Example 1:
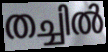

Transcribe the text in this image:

തച്ചിൽ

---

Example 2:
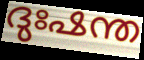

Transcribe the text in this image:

ദുഃഷന്ത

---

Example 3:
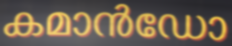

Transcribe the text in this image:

കമാൻഡോ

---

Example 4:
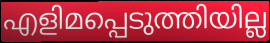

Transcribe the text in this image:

എളിമപ്പെടുത്തിയില്ല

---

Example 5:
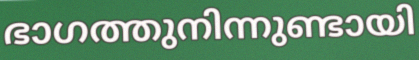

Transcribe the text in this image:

ഭാഗത്തുനിന്നുണ്ടായി